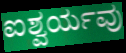
ಐಶ್ವರ್ಯವು